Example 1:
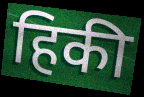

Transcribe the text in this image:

हिकी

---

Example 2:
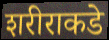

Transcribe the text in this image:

शरीराकडे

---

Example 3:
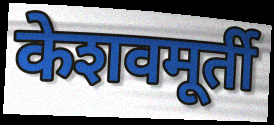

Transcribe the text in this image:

केशवमूर्ती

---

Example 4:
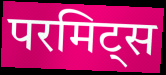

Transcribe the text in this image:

परमिट्स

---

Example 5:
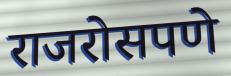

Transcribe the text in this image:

राजरोसपणे